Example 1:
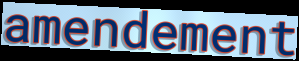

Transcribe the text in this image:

amendement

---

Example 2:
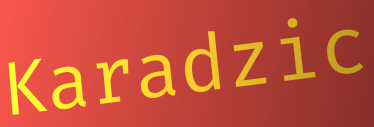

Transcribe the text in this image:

Karadzic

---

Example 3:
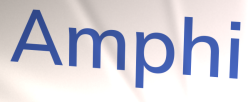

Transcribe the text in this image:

Amphi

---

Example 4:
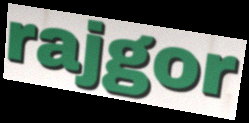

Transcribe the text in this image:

rajgor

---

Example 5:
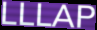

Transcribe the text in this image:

LLLAP